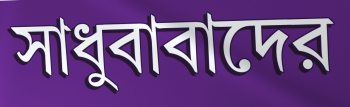
সাধুবাবাদের